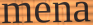
mena